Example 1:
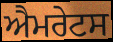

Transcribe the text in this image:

ਐਮਰੇਟਸ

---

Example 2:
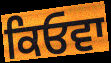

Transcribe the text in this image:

ਕਿਓਵਾ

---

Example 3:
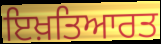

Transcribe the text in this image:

ਇਖ਼ਤਿਆਰਤ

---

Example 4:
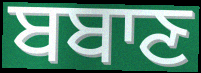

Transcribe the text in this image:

ਬਬਾਣ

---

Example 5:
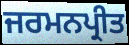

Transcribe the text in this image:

ਜਰਮਨਪ੍ਰੀਤ